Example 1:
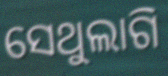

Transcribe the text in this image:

ସେଥୁଲାଗି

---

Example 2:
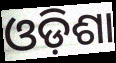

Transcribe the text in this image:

ଓଡ଼ିଶା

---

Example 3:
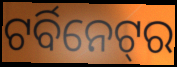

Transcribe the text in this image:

ଟର୍ବିନେଟ୍‌ର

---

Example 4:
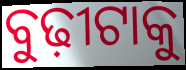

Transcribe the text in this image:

ବୁଢ଼ୀଟାକୁ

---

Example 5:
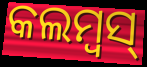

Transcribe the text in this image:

କଲମ୍ବସ୍